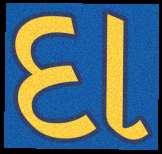
દા